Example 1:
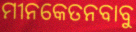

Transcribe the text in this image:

ମୀନକେତନବାବୁ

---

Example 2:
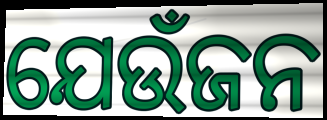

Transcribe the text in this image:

ଯେଉଁଜନ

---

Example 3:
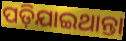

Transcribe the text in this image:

ପଡ଼ିଯାଇଥାନ୍ତା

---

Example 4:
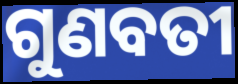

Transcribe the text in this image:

ଗୁଣବତୀ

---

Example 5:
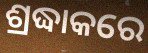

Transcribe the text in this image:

ଶ୍ରଦ୍ଧାକରେ